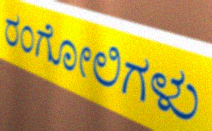
ರಂಗೋಲಿಗಳು